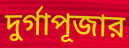
দুর্গাপূজার